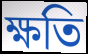
ক্ষতি